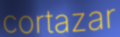
cortazar